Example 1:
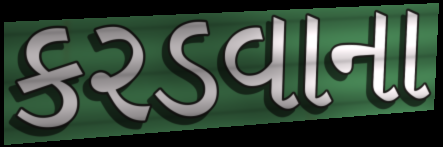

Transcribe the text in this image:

કરડવાના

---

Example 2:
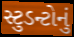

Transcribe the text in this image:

સ્ટુડન્ટોનું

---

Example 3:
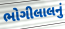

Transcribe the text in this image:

ભોગીલાલનું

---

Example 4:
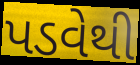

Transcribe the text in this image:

પડવેથી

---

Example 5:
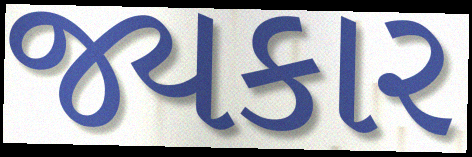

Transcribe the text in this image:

જ્યકાર